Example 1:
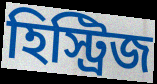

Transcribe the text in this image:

হিস্ট্রিজ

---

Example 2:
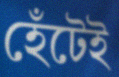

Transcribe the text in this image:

হেঁটেই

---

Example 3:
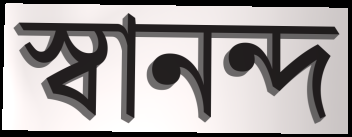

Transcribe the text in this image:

স্বানন্দ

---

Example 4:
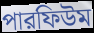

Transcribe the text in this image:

পারফিউম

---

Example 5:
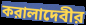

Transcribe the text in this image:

করালাদেবীর